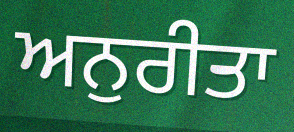
ਅਨੁਰੀਤਾ